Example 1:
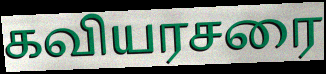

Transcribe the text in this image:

கவியரசரை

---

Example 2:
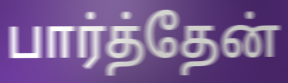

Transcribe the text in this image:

பார்த்தேன்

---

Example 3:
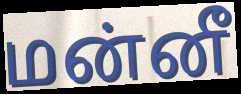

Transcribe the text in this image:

மன்னீ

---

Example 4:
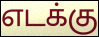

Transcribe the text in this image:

எடக்கு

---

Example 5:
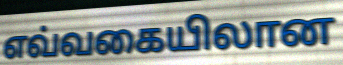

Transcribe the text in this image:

எவ்வகையிலான